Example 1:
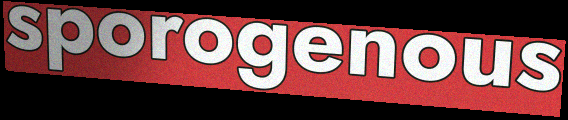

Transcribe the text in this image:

sporogenous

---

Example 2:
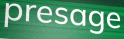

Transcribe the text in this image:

presage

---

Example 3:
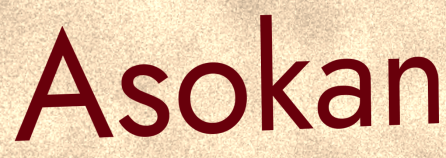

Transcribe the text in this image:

Asokan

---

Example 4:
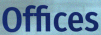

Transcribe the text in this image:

Offices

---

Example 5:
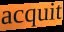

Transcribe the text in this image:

acquit